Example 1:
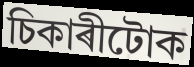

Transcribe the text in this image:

চিকাৰীটোক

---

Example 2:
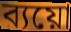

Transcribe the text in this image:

ব্যয়ো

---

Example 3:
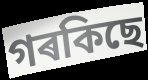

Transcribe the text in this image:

গৰকিছে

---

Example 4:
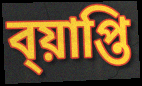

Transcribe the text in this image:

ব্য়াপ্তি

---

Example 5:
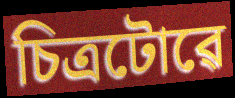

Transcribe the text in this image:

চিত্ৰটোৱে